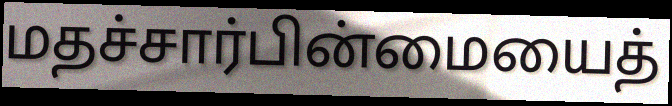
மதச்சார்பின்மையைத்